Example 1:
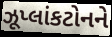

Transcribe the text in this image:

ઝૂપ્લાંકટોનને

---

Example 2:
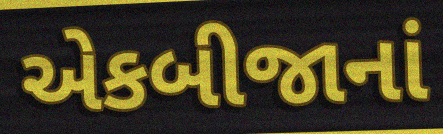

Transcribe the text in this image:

એકબીજાનાં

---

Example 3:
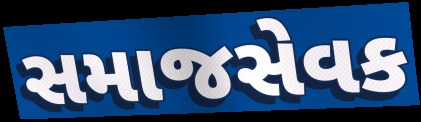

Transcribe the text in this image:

સમાજસેવક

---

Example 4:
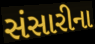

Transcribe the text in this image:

સંસારીના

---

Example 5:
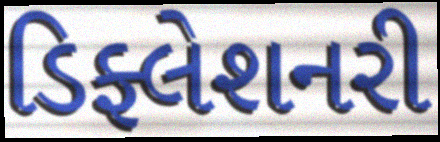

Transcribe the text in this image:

ડિફ્લેશનરી